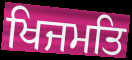
ਖਿਜਮਤਿ